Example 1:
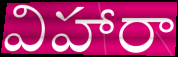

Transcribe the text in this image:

విహారా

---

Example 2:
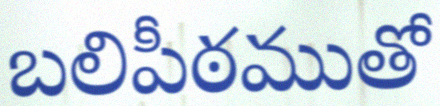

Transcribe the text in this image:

బలిపీఠముతో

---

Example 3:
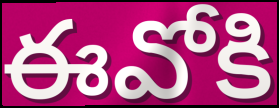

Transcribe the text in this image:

ఈవోకి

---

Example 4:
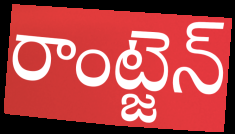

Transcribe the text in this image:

రాంట్జెన్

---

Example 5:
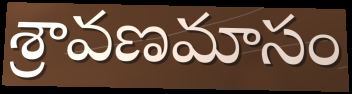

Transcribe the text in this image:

శ్రావణమాసం